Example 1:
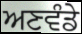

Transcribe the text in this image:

ਅਣਵੰਡੇ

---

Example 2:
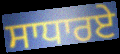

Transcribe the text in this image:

ਸਾਧਾਰਏ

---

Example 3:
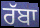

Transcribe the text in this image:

ਰੱਬਾ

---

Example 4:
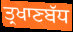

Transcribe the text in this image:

ਤ੍ਰਖਾਣਬੱਧ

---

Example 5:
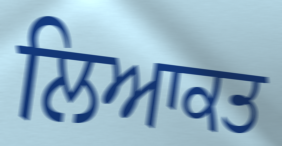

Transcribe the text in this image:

ਲਿਆਕਤ